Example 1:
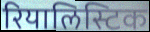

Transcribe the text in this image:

रियालिस्टिक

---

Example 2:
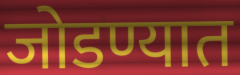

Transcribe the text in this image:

जोडण्यात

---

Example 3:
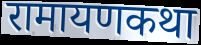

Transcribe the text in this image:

रामायणकथा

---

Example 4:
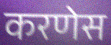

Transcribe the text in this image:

करणेस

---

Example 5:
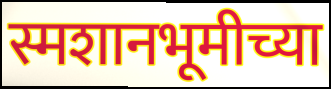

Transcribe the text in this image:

स्मशानभूमीच्या